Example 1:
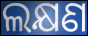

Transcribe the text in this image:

ଲକ୍ଷଣ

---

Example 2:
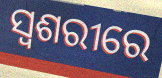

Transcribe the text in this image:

ସ୍ୱଶରୀରେ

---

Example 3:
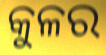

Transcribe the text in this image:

କୁଳର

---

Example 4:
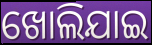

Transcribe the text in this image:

ଖୋଲିଯାଇ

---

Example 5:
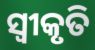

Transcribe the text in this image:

ସ୍ବୀକୃତି